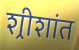
श्रीशांत